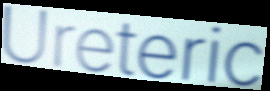
Ureteric